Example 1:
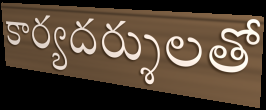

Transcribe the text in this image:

కార్యదర్శులతో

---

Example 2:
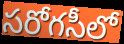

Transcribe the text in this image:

సరోగసీలో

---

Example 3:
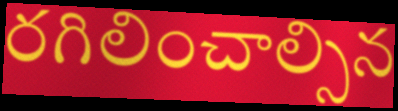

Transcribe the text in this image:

రగిలించాల్సిన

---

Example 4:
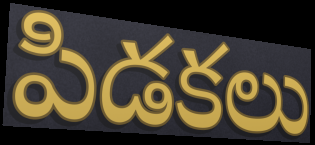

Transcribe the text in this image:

పిడకలు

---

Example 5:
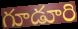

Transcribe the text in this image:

గూడూరి